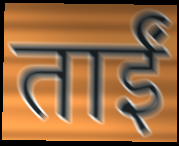
ताईं